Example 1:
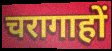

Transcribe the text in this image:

चरागाहों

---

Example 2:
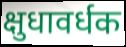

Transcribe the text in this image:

क्षुधावर्धक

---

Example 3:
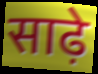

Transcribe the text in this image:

साढ़े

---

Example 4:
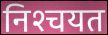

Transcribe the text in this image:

निश्चयत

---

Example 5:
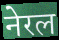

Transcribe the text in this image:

नेरल